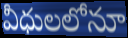
వీధులలోనూ